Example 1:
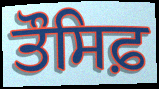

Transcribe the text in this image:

ਤੌਸਿਫ਼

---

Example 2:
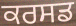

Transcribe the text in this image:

ਕਰਸਡ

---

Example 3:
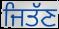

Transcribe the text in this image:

ਜਿਤੱਣ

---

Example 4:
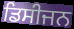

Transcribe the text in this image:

ਡਿਸੀਜਨ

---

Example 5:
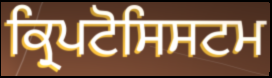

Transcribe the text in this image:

ਕ੍ਰਿਪਟੋਸਿਸਟਮ